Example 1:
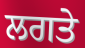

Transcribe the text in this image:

ਲਗਤੇ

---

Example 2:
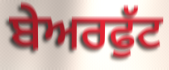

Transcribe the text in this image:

ਬੇਅਰਫੁੱਟ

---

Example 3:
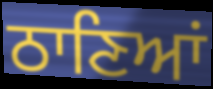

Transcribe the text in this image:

ਠਾਣਿਆਂ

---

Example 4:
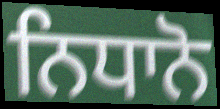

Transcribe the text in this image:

ਨਿਧਾਨੋ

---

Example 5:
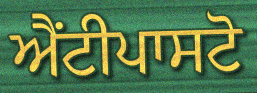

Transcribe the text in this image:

ਐਂਟੀਪਾਸਟੋ